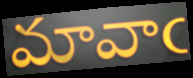
మావాఁ